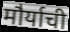
मौर्याची